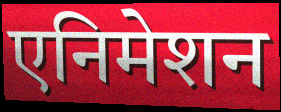
एनिमेशन